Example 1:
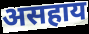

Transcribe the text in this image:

असहाय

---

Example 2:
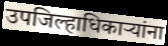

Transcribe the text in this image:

उपजिल्हाधिकाऱ्यांना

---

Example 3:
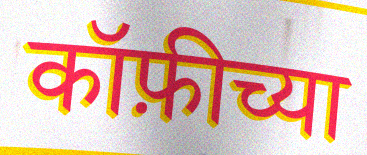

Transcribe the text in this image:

कॉफ़ीच्या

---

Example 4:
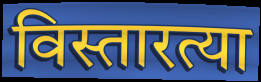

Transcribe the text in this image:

विस्तारत्या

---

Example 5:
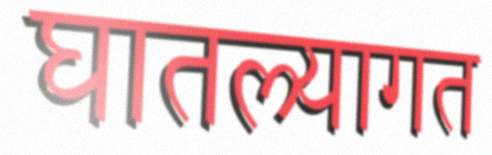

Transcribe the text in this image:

घातल्यागत